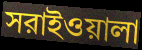
সরাইওয়ালা